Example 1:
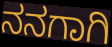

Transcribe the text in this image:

ನನಗಾಗಿ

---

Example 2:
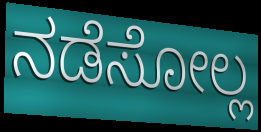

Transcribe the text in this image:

ನಡೆಸೋಲ್ಲ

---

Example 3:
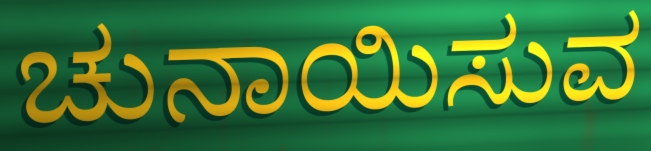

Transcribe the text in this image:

ಚುನಾಯಿಸುವ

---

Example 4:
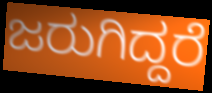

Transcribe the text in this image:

ಜರುಗಿದ್ದರೆ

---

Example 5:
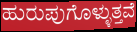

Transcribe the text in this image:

ಹುರುಪುಗೊಳ್ಳುತ್ತವೆ